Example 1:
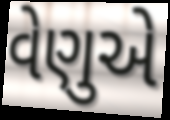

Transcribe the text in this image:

વેણુએ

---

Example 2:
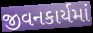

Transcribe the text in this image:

જીવનકાર્યમાં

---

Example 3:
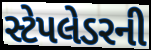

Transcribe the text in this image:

સ્ટેપલેડરની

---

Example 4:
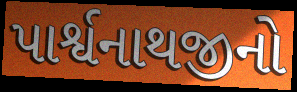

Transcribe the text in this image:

પાર્શ્વનાથજીનો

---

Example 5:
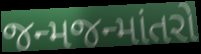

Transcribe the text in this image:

જન્મજન્માંતરો